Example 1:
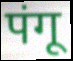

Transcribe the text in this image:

पंगू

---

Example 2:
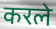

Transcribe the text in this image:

करले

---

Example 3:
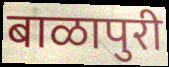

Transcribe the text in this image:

बाळापुरी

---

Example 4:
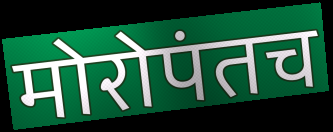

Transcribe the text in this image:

मोरोपंतच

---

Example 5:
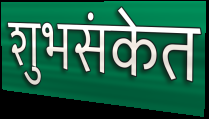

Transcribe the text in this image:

शुभसंकेत